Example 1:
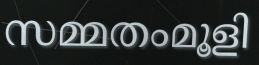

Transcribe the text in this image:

സമ്മതംമൂളി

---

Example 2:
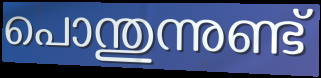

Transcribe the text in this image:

പൊന്തുന്നുണ്ട്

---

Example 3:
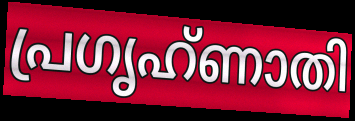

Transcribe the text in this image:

പ്രഗൃഹ്ണാതി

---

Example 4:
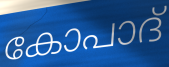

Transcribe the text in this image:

കോപാദ്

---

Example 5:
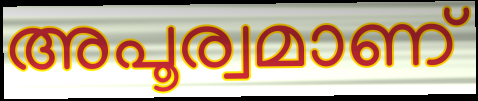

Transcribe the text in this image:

അപൂര്വമാണ്